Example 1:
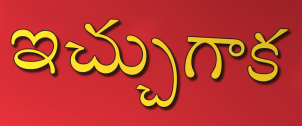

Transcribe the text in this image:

ఇచ్చుగాక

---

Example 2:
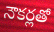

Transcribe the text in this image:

నౌకర్లతో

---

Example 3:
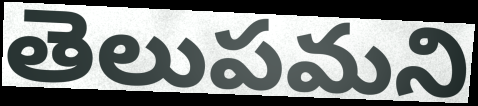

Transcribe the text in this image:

తెలుపమని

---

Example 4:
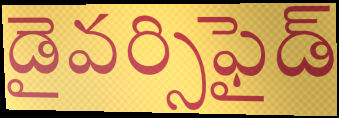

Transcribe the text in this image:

డైవర్సిఫైడ్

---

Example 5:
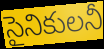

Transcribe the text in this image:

సైనికులనీ